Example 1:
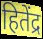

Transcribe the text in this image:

हितेंद्र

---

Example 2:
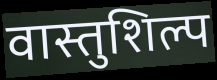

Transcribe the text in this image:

वास्तुशिल्प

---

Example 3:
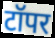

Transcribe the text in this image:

टॉपर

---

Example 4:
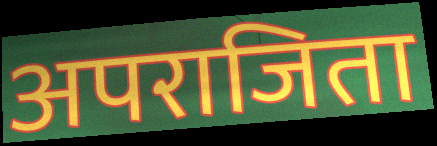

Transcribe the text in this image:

अपराजिता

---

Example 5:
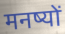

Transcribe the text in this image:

मनष्यों